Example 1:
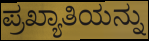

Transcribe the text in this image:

ಪ್ರಖ್ಯಾತಿಯನ್ನು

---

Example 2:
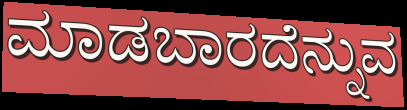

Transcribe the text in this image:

ಮಾಡಬಾರದೆನ್ನುವ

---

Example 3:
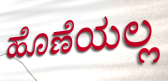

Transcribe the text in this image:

ಹೊಣೆಯಲ್ಲ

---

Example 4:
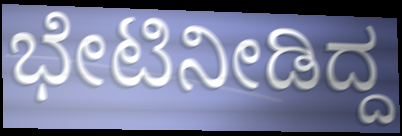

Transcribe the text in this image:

ಭೇಟಿನೀಡಿದ್ದ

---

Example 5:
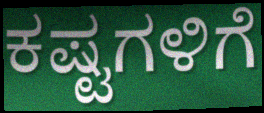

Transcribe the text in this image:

ಕಷ್ಟಗಳಿಗೆ